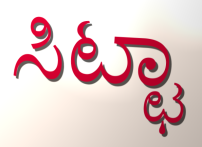
ಸಿಟ್ಟಾ